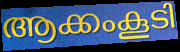
ആക്കംകൂടി